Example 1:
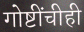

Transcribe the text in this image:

गोष्टींचीही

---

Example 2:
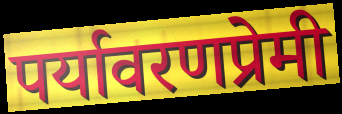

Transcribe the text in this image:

पर्यावरणप्रेमी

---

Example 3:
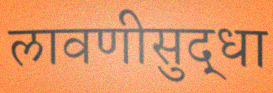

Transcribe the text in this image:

लावणीसुद्धा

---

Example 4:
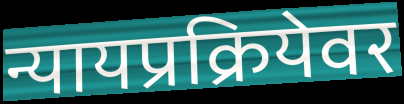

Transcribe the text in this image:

न्यायप्रक्रियेवर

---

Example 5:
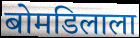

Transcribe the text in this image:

बोमडिलाला